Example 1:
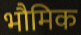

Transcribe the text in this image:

भौमिक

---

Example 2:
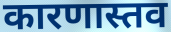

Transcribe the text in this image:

कारणास्तव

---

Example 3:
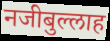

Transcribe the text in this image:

नजीबुल्लाह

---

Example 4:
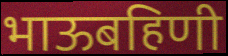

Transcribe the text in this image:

भाऊबहिणी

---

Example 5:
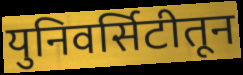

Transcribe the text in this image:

युनिवर्सिटीतून